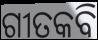
ଗୀତକବି